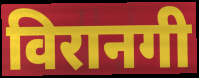
विरानगी